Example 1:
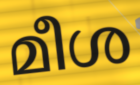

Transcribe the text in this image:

മീശ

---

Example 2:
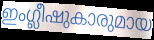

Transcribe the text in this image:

ഇംഗ്ലീഷുകാരുമായ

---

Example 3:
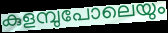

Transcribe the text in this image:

കുളമ്പുപോലെയും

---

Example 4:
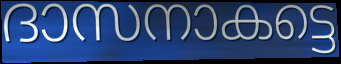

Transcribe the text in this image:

ദാസനാകട്ടെ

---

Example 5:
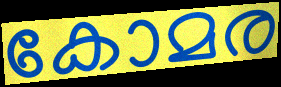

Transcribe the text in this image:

കോമര